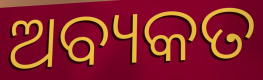
ଅବ୍ୟକତ